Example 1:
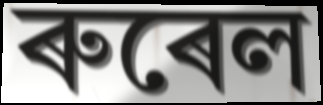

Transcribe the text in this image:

ৰুৰেল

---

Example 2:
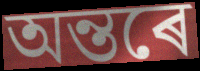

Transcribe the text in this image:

অন্তৰে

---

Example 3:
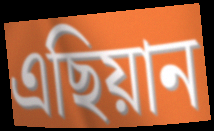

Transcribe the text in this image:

এছিয়ান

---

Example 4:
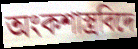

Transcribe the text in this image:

অংকশাস্ত্ৰবিদে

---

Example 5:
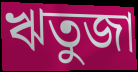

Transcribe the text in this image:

ঋতুজা